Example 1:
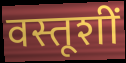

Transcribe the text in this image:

वस्तूशीं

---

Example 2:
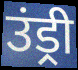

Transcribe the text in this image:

उंड्री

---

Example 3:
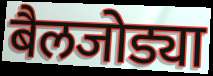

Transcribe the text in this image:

बैलजोड्या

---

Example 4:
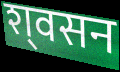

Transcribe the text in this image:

श्वसन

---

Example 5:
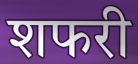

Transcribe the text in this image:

शफरी